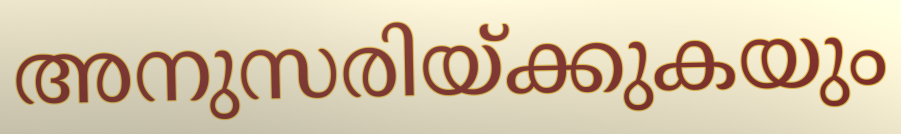
അനുസരിയ്ക്കുകയും